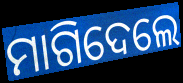
ମାଗିଦେଲେ